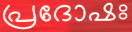
പ്രദോഷഃ